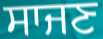
ਸਾਜਣ